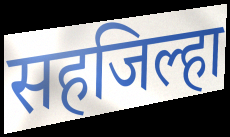
सहजिल्हा